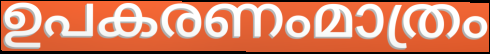
ഉപകരണംമാത്രം